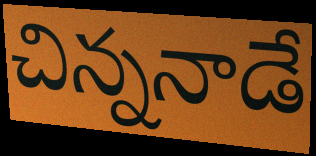
చిన్ననాడే